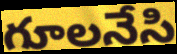
గూలనేసి